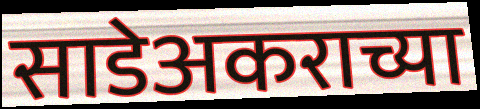
साडेअकराच्या